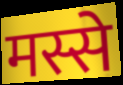
मस्से